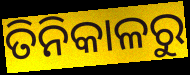
ତିନିକାଳରୁ